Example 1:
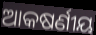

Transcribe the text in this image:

ଆକଷର୍ଣୀୟ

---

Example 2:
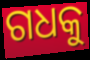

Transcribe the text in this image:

ଗଧକୁ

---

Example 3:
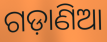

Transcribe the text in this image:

ଗଡ଼ାଣିଆ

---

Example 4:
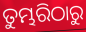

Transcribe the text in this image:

ତୁମ୍ଭରିଠାରୁ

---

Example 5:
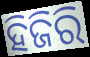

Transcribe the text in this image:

ହିଜିରି